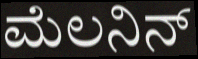
ಮೆಲನಿನ್